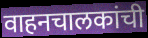
वाहनचालकांची